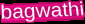
bagwathi